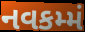
નવકમ્મં